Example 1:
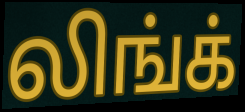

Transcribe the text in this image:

லிங்க்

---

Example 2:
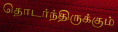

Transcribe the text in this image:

தொடர்ந்திருக்கும்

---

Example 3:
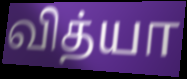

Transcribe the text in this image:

வித்யா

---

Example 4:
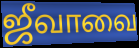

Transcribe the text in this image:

ஜீவாவை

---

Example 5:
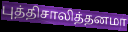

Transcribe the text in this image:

புத்திசாலித்தனமா